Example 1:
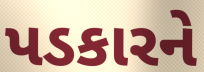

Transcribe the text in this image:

પડકારને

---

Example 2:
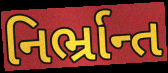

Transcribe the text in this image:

નિર્ભ્રાન્ત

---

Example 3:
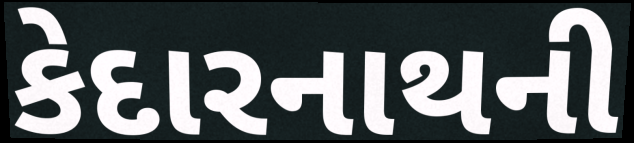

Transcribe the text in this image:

કેદારનાથની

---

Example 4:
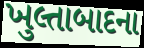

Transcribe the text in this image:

ખુલ્તાબાદના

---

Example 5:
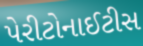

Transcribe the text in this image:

પેરીટોનાઈટીસ